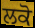
ਲਕੋ